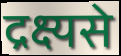
द्रक्ष्यसे